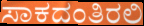
ಸಾಕದಂತಿರಲಿ